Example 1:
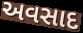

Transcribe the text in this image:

અવસાદ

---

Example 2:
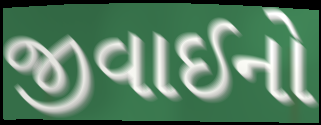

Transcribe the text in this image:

જીવાઈનો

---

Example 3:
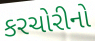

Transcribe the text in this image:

કરચોરીનો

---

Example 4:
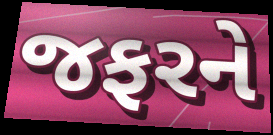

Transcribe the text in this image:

જફરને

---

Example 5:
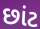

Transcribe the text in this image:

છાંટ